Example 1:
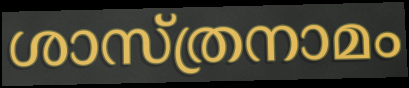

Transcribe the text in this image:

ശാസ്ത്രനാമം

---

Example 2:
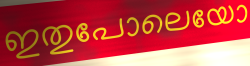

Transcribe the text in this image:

ഇതുപോലെയോ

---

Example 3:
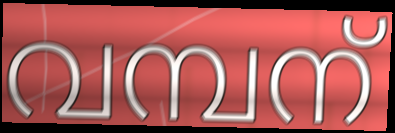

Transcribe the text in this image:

വമ്പന്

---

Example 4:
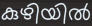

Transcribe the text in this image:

കുഴിയിൽ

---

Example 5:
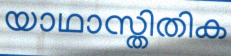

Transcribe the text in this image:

യാഥാസ്തിതിക